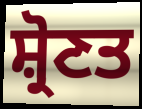
ਸ਼੍ਰੋਣਤ